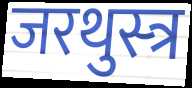
जरथुस्‍त्र